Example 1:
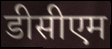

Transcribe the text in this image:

डीसीएम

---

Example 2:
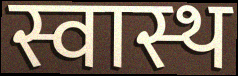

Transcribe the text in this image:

स्वास्थ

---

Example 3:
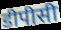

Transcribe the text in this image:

डीपीसी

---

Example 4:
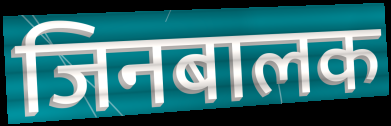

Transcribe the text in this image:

जिनबालक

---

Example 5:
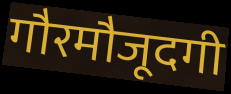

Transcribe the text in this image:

गौरमौजूदगी